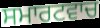
ਸਮਾਰਟਵਾਚ